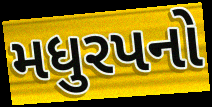
મધુરપનો